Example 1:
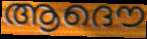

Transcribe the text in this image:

ആദൌ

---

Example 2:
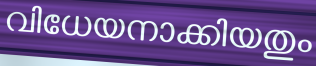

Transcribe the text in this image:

വിധേയനാക്കിയതും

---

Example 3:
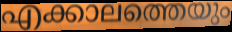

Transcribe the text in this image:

എക്കാലത്തെയും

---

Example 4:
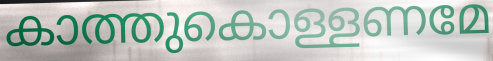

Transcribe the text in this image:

കാത്തുകൊള്ളണമേ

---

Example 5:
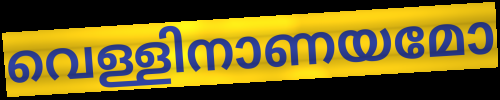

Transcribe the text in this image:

വെള്ളിനാണയമോ